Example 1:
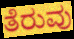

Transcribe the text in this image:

ತೆರುವು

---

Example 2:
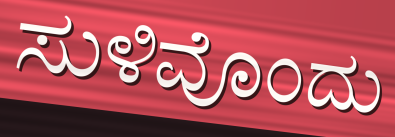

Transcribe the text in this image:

ಸುಳಿವೊಂದು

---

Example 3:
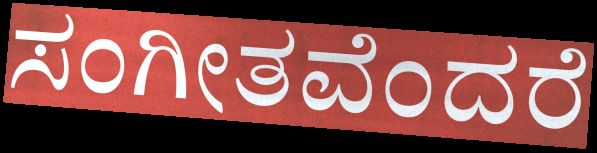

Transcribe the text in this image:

ಸಂಗೀತವೆಂದರೆ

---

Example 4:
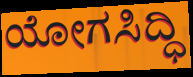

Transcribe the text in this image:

ಯೋಗಸಿದ್ಧಿ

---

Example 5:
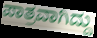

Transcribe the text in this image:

ಪಾತ್ರವಾಗಿದ್ದು